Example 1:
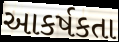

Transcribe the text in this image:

આકર્ષકતા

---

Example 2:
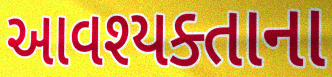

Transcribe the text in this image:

આવશ્યક્તાના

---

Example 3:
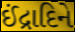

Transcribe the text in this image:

ઈંદ્રાદિને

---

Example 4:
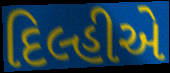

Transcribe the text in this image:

દિલ્હીએ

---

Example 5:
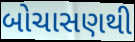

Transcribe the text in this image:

બોચાસણથી